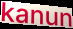
kanun